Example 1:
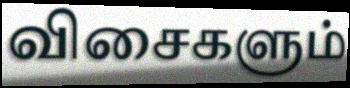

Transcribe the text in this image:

விசைகளும்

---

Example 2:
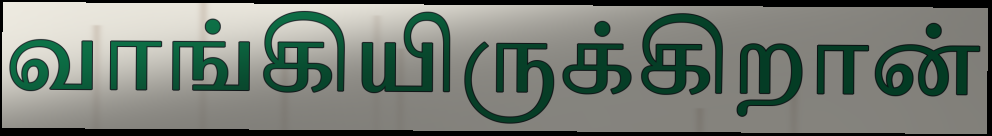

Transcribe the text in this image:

வாங்கியிருக்கிறான்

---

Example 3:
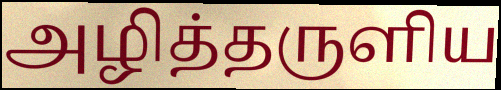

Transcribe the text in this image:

அழித்தருளிய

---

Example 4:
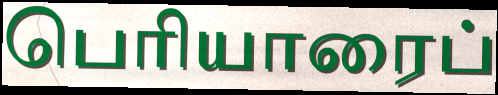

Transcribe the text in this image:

பெரியாரைப்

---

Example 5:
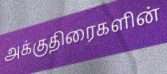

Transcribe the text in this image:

அக்குதிரைகளின்